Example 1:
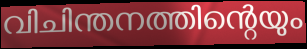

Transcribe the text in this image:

വിചിന്തനത്തിന്റെയും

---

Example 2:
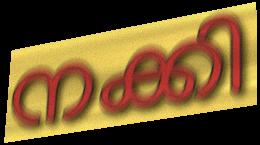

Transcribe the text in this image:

നക്കി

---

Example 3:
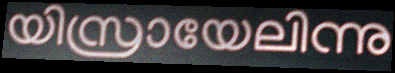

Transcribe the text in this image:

യിസ്രായേലിന്നു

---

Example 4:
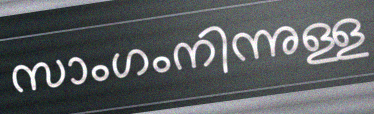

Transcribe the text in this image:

സാംഗംനിന്നുള്ള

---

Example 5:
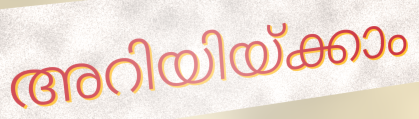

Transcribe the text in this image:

അറിയിയ്ക്കാം